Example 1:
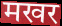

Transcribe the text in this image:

मखर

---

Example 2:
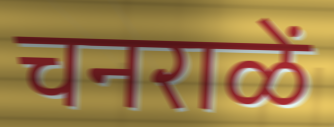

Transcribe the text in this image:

चनराळें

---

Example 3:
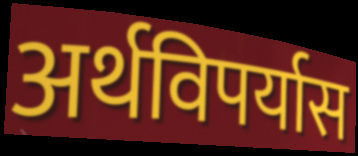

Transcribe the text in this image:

अर्थविपर्यास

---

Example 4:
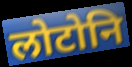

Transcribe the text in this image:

लोटोनि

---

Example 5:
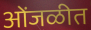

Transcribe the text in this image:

ओंजळीत